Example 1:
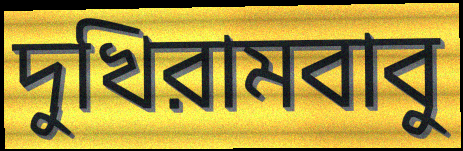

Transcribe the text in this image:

দুখিরামবাবু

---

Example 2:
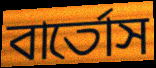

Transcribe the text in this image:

বার্তোস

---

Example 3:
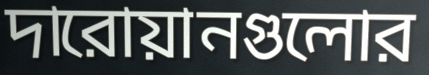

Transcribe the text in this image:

দারোয়ানগুলোর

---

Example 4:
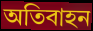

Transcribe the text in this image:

অতিবাহন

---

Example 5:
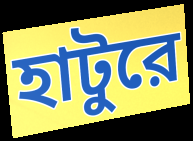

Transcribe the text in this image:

হাটুরে